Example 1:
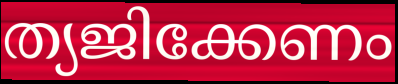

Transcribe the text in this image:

ത്യജിക്കേണം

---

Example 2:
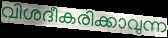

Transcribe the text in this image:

വിശദീകരിക്കാവുന്ന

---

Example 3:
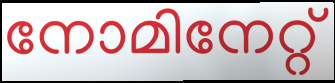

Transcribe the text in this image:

നോമിനേറ്റ്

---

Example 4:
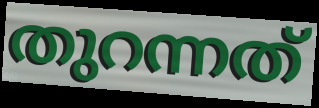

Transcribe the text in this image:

തുറന്നത്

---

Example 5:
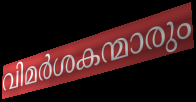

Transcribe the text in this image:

വിമർശകന്മാരും